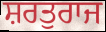
ਸ਼ਰਤੁਰਾਜ